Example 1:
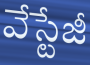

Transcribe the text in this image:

వేస్టేజీ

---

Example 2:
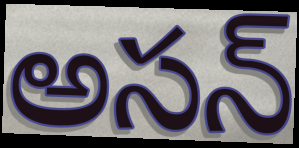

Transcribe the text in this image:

అసన్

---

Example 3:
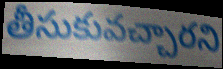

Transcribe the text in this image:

తీసుకువచ్చారని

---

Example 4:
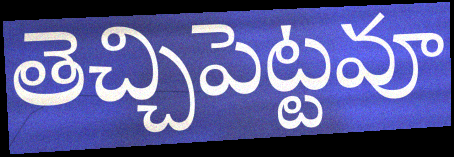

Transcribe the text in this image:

తెచ్చిపెట్టవూ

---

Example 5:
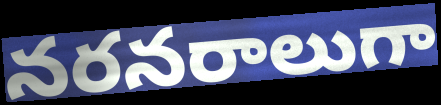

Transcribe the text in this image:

నరనరాలుగా